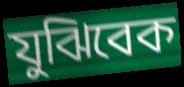
যুঝিবেক